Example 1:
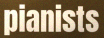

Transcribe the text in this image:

pianists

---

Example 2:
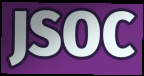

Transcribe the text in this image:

JSOC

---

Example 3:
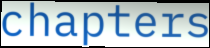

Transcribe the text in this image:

chapters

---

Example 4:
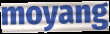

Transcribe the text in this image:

moyang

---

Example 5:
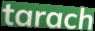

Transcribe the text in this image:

tarach